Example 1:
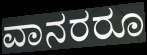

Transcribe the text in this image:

ವಾನರರೂ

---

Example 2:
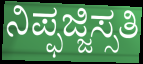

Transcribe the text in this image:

ನಿಪ್ಫಜ್ಜಿಸ್ಸತಿ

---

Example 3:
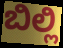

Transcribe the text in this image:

ಬಿಲ್ಲಿ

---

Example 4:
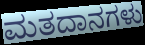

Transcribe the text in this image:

ಮತದಾನಗಳು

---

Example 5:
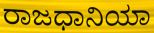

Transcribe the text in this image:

ರಾಜಧಾನಿಯಾ